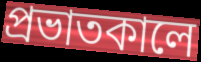
প্রভাতকালে